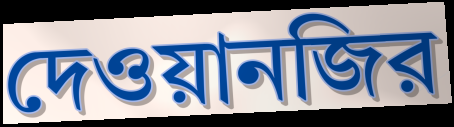
দেওয়ানজির